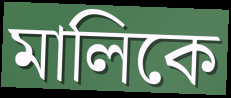
মালিকে